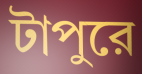
টাপুরে